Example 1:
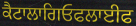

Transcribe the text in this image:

ਕੈਟਾਲਾਗਿਓਫਲਾਈਫ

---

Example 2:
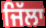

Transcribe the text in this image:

ਜਿੱਲਾ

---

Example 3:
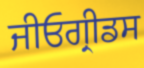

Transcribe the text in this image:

ਜੀਓਗ੍ਰੀਡਸ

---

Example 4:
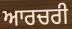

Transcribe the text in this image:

ਆਰਚਰੀ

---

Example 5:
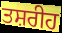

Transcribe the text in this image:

ਤਸ਼ਰੀਹ